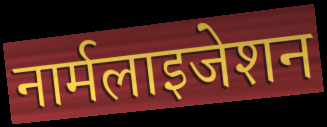
नार्मलाइजेशन